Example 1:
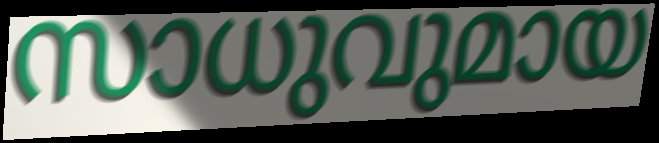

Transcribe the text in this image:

സാധുവുമായ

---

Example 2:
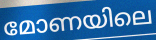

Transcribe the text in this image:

മോണയിലെ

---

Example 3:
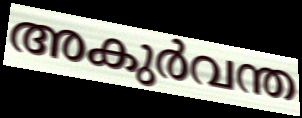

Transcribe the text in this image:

അകുർവന്ത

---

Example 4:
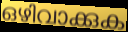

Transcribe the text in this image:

ഒഴിവാക്കുക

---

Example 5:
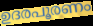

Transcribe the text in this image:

ഉദരപൂരണം